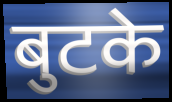
बुटके